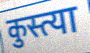
कुस्त्या